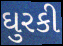
ઘુરકી